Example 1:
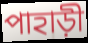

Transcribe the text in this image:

পাহাড়ী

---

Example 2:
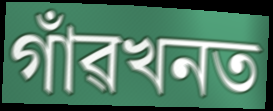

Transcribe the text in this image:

গাঁৱখনত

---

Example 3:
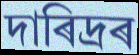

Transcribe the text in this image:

দাৰিদ্ৰৰ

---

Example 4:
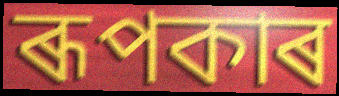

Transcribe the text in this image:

ৰূপকাৰ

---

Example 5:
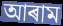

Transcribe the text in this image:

আৰাম